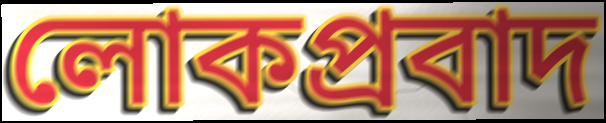
লোকপ্রবাদ